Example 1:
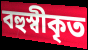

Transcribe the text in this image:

বহুস্বীকৃত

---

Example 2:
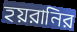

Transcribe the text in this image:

হয়রানির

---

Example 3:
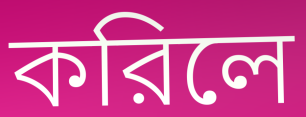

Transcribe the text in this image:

করিলে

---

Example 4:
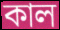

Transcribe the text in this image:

কাল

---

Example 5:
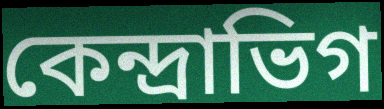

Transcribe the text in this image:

কেন্দ্রাভিগ